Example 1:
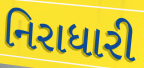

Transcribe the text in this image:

નિરાધારી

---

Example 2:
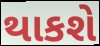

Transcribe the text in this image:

થાકશે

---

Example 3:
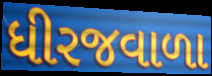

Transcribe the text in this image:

ધીરજવાળા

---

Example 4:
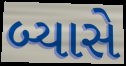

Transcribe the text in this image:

બ્યાસે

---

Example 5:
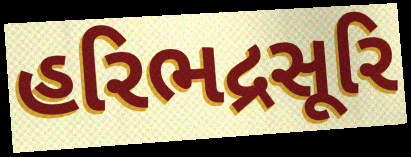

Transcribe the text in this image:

હરિભદ્રસૂરિ